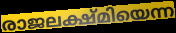
രാജലക്ഷ്മിയെന്ന